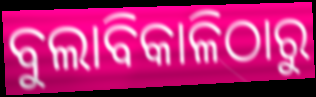
ବୁଲାବିକାଳିଠାରୁ